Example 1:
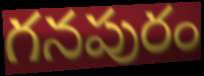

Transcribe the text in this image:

గనపురం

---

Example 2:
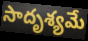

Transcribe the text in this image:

సాదృశ్యమే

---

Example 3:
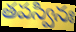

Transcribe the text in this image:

తపస్వినః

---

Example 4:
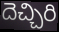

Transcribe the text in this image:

దెచ్చిరి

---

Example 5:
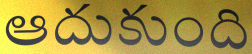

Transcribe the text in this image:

ఆదుకుంది